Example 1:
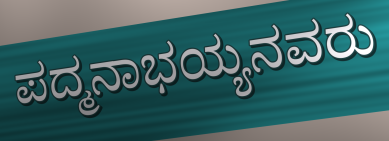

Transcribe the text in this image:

ಪದ್ಮನಾಭಯ್ಯನವರು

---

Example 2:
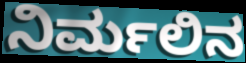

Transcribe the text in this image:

ನಿರ್ಮಲಿನ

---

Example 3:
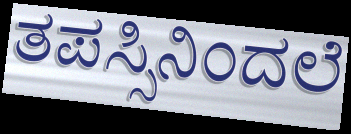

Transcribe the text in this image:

ತಪಸ್ಸಿನಿಂದಲೆ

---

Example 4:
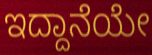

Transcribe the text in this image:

ಇದ್ದಾನೆಯೇ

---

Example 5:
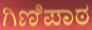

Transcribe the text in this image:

ಗಿಣಿಪಾಠ